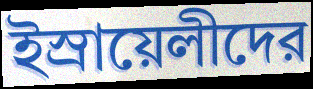
ইস্রায়েলীদের